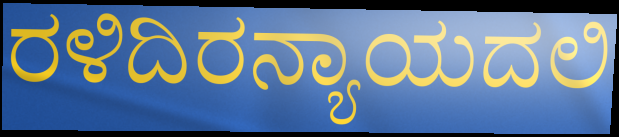
ರಳಿದಿರನ್ಯಾಯದಲಿ